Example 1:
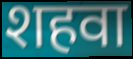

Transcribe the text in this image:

शहवा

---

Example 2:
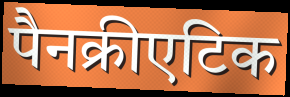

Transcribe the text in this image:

पैनक्रीएटिक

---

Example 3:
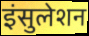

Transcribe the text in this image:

इंसुलेशन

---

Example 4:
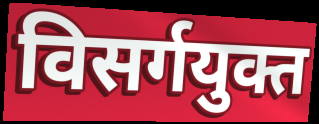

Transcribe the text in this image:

विसर्गयुक्त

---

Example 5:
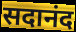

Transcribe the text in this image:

सदानंद